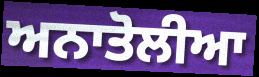
ਅਨਾਤੋਲੀਆ